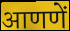
आणणें